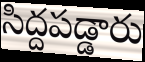
సిద్దపడ్డారు